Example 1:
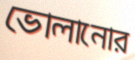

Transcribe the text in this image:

ভোলানোর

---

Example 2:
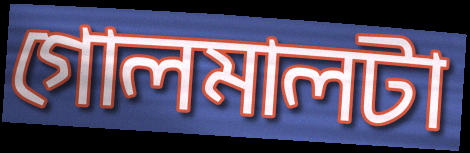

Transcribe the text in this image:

গোলমালটা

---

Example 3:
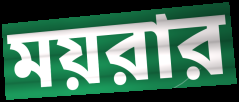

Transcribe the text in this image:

ময়রার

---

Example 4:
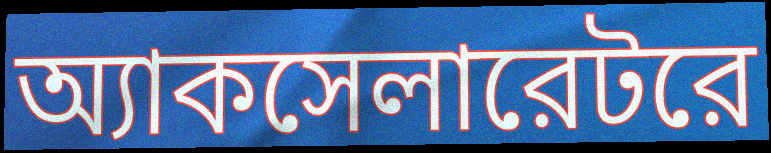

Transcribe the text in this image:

অ্যাকসেলারেটরে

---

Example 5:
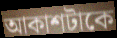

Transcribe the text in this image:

আকাশটাকে